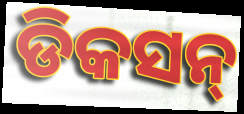
ଡିକସନ୍